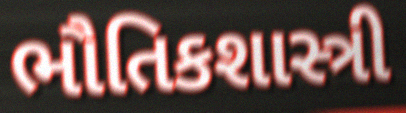
ભૌતિકશાસ્ત્રી